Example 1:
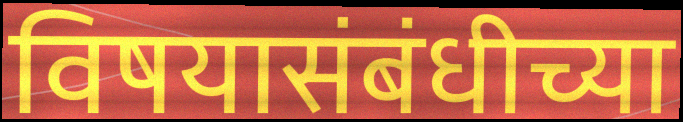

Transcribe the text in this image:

विषयासंबंधीच्या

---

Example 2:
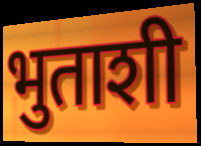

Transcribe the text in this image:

भुताशी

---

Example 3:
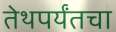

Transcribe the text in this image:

तेथपर्यंतचा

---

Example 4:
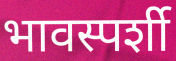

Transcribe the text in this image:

भावस्पर्शी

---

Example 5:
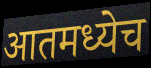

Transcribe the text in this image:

आतमध्येच